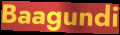
Baagundi